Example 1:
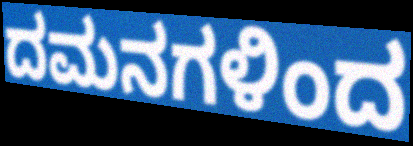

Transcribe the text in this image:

ದಮನಗಳಿಂದ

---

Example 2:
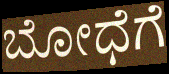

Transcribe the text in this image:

ಬೋಧೆಗೆ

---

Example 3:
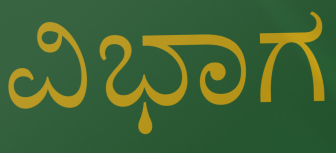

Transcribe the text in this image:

ವಿಭಾಗ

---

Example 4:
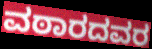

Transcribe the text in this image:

ವಠಾರದವರ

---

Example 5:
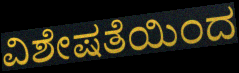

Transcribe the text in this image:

ವಿಶೇಷತೆಯಿಂದ